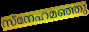
സ്നേഹമഞ്ഞു